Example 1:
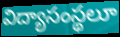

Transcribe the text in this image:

విద్యాసంస్థలూ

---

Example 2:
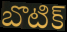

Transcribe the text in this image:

బొటిక్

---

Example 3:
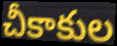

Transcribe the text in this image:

చీకాకుల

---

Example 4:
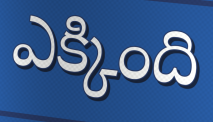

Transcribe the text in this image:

ఎక్కింది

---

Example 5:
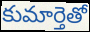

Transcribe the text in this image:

కుమార్తెతో